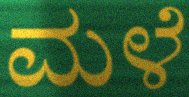
ಮಳೆ